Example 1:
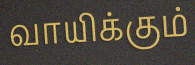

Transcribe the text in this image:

வாயிக்கும்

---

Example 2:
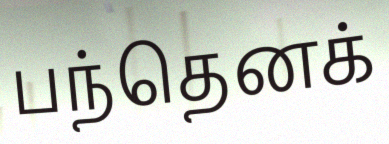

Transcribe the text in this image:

பந்தெனக்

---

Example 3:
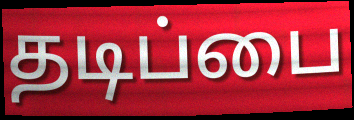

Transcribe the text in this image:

தடிப்பை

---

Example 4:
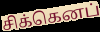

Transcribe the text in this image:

சிக்கெனப்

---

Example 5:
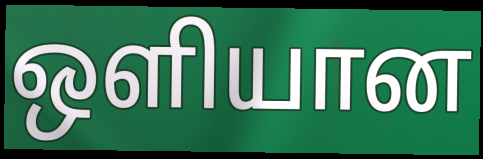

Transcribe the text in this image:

ஒளியான